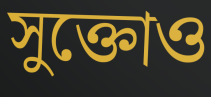
সুক্তোও